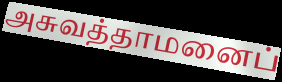
அசுவத்தாமனைப்